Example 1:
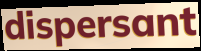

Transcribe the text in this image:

dispersant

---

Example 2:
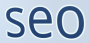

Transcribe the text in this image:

seo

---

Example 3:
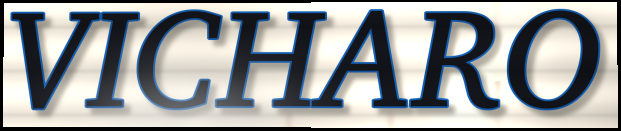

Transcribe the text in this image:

VICHARO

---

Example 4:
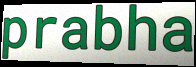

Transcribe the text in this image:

prabha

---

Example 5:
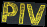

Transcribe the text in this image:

PIV